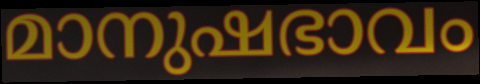
മാനുഷഭാവം